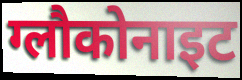
ग्लौकोनाइट